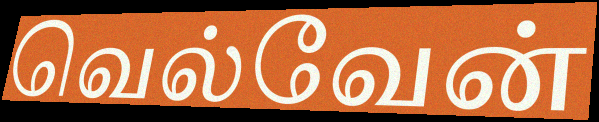
வெல்வேன்